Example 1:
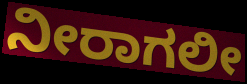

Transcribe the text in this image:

ನೀರಾಗಲೀ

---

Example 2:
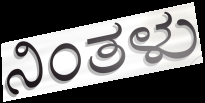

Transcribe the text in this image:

ನಿಂತಳು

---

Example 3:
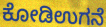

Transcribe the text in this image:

ಕೋಡಿಉಗನೆ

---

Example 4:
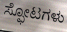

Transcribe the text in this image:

ಸ್ಫೋಟಗಳು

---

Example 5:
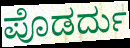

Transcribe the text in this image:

ಪೊಡರ್ದು